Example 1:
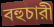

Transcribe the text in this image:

বহুচারী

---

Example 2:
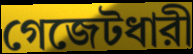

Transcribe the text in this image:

গেজেটধারী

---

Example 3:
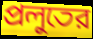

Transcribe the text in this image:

প্রলুতের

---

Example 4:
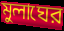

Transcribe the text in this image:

মুলাঘের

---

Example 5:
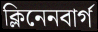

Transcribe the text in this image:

ক্লিনেনবার্গ